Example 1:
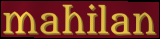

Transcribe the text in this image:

mahilan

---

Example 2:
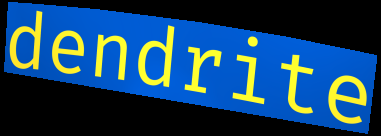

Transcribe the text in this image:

dendrite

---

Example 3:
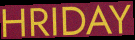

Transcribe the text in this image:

HRIDAY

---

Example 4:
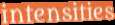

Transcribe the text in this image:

intensities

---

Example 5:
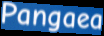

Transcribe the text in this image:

Pangaea